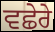
ਵਛੇਰੇ